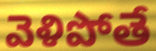
వెళిపోతే